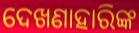
ଦେଖଣାହାରିଙ୍କ